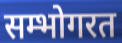
सम्भोगरत